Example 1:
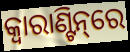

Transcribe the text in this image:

କ୍ବାରାଣ୍ଟିନ୍‌ରେ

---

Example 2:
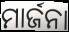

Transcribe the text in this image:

ମାର୍ଜନା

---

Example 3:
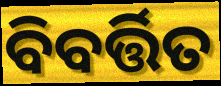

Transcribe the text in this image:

ବିବର୍ତ୍ତିତ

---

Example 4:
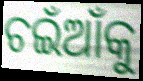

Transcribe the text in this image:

ଚଇଁଆଁକୁ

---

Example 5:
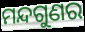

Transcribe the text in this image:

ମନ୍ଦଗୁଣର